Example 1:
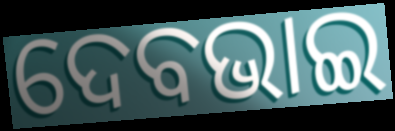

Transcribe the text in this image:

ଦେବଭାଇ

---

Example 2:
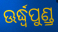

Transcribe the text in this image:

ଊର୍ଦ୍ଧ୍ୱପୁଣ୍ଡ୍ର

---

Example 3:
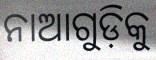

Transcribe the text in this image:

ନାଆଗୁଡ଼ିକୁ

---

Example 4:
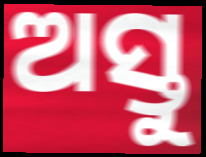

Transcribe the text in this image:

ଅସ୍ତୁ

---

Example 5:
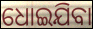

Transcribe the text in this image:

ଧୋଇଯିବା